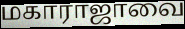
மகாராஜாவை